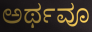
ಅರ್ಥವೂ